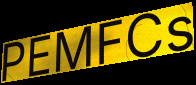
PEMFCs